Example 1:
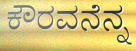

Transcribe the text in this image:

ಕೌರವನೆನ್ನ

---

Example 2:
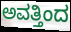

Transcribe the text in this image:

ಅವತ್ತಿಂದ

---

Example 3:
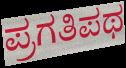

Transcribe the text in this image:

ಪ್ರಗತಿಪಥ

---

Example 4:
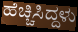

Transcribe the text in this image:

ಹೆಚ್ಚಿಸಿದ್ದಳು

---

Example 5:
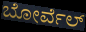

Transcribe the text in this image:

ಬೋರ್ವೆಲ್